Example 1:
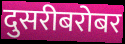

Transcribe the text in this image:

दुसरीबरोबर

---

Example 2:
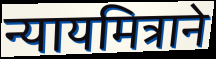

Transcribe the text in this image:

न्यायमित्राने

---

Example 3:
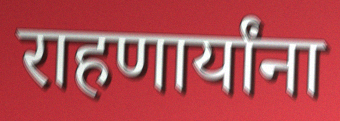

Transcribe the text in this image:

राहणार्यांना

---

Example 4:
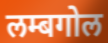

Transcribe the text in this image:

लम्बगोल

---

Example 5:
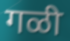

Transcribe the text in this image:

गळी